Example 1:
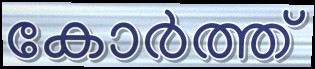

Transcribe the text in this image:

കോർത്ത്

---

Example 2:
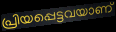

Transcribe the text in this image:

പ്രിയപ്പെട്ടവയാണ്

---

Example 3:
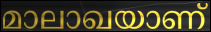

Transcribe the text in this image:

മാലാഖയാണ്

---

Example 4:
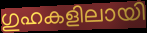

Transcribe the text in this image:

ഗുഹകളിലായി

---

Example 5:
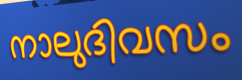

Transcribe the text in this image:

നാലുദിവസം